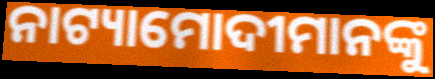
ନାଟ୍ୟାମୋଦୀମାନଙ୍କୁ